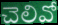
చెలివో